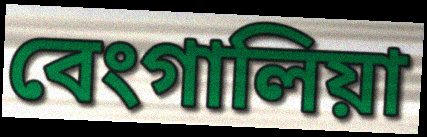
বেংগালিয়া